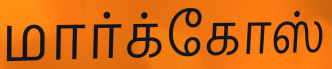
மார்க்கோஸ்